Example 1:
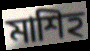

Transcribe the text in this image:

মাশিহ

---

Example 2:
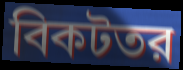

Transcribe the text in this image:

বিকটতর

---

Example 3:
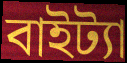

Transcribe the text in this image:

বাইট্যা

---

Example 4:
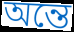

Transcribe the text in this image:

অন্তে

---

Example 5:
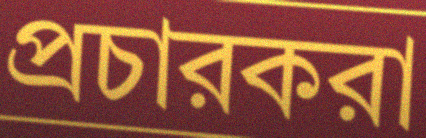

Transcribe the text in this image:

প্রচারকরা